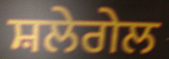
ਸ਼ਲੇਗੇਲ